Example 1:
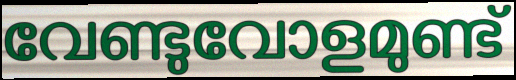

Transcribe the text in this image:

വേണ്ടുവോളമുണ്ട്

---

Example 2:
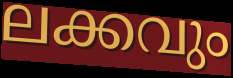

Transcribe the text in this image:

ലക്കവും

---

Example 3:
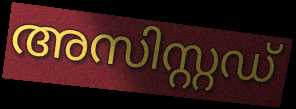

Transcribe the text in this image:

അസിസ്റ്റഡ്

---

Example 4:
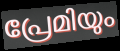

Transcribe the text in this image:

പ്രേമിയും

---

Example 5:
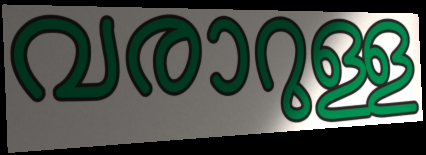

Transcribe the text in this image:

വരാറുള്ള